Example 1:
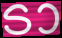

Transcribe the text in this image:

ടാ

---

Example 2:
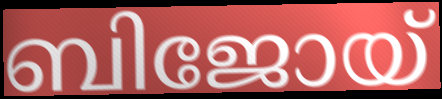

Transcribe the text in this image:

ബിജോയ്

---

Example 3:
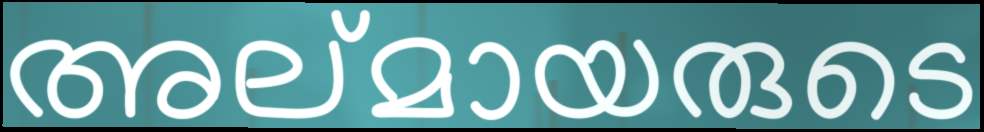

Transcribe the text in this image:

അല്മായരുടെ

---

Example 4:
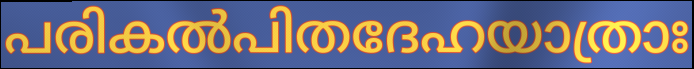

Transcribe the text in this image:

പരികൽപിതദേഹയാത്രാഃ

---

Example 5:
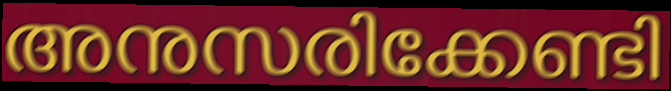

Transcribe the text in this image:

അനുസരിക്കേണ്ടി